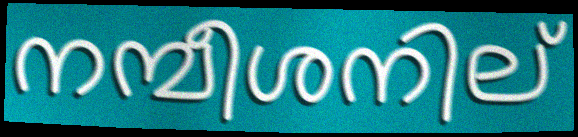
നമ്പീശനില്